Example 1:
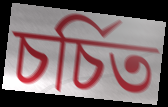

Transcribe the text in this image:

চৰ্চিত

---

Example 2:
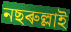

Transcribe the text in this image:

নছৰুল্লাই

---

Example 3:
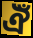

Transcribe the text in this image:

ঐঁ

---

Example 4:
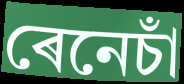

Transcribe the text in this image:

ৰেনেচাঁ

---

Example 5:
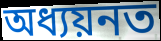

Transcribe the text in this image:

অধ্যয়নত